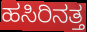
ಹಸಿರಿನತ್ತ